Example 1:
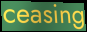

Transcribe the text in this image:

ceasing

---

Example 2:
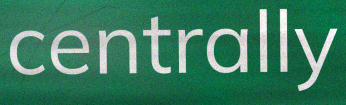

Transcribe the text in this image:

centrally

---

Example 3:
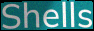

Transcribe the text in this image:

Shells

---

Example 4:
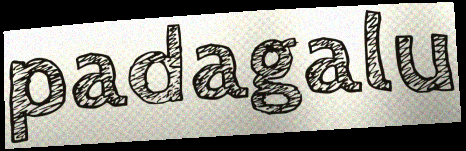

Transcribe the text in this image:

padagalu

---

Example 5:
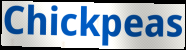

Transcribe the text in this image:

Chickpeas